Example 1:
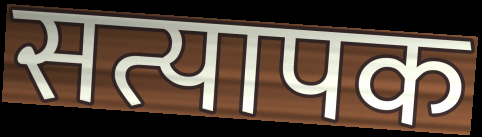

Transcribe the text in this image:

सत्यापक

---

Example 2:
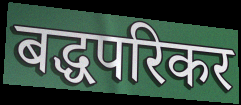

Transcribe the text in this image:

बद्धपरिकर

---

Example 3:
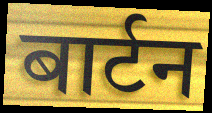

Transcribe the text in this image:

बार्टन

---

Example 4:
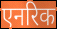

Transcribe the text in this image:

एनरिक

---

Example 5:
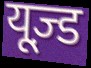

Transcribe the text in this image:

यूज़्ड